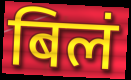
बिलं